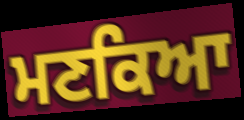
ਮਣਕਿਆ